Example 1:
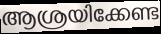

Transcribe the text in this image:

ആശ്രയിക്കേണ്ട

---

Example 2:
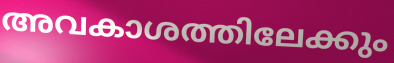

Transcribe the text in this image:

അവകാശത്തിലേക്കും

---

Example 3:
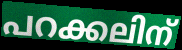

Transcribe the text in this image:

പറക്കലിന്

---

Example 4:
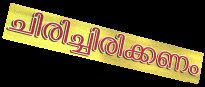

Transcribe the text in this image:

ചിരിച്ചിരിക്കണം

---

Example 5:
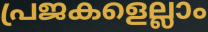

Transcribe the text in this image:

പ്രജകളെല്ലാം